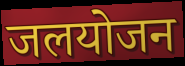
जलयोजन